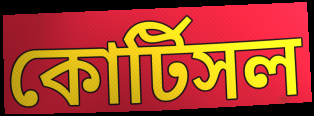
কোর্টিসল